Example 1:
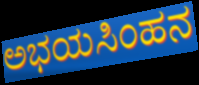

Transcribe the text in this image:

ಅಭಯಸಿಂಹನ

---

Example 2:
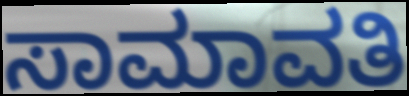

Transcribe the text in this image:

ಸಾಮಾವತಿ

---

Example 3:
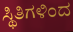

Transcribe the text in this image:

ಸ್ಥಿತಿಗಳಿಂದ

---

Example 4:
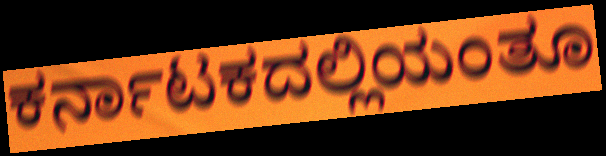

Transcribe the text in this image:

ಕರ್ನಾಟಕದಲ್ಲಿಯಂತೂ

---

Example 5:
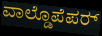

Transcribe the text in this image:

ವಾಲ್ಡೊಪೆಪರ್‍